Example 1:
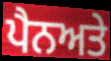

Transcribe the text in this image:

ਪੈਨਅਤੇ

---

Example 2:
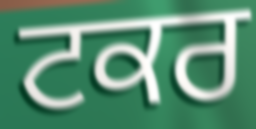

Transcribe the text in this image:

ਟਕਰ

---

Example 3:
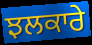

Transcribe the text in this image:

ਝਲਕਾਰੇ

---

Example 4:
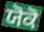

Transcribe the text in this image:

ਯੋਕੋ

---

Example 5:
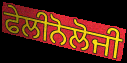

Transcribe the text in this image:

ਫੇਲੀਨੋਲੋਜੀ